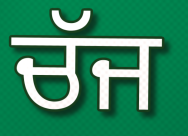
ਚੱਜ